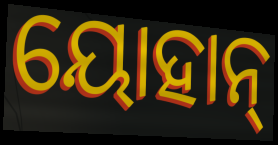
ୟୋହାନ୍